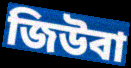
জিউবা